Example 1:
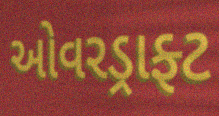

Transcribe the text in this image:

ઓવરડ્રાફ્ટ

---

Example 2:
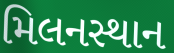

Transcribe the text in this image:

મિલનસ્થાન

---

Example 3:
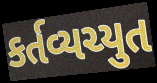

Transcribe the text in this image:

કર્તવ્યચ્યુત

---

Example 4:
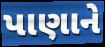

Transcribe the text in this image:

પાણાને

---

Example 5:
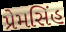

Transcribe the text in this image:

પ્રેમસિંહ